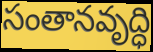
సంతానవృద్ధి